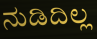
ನುಡಿದಿಲ್ಲ